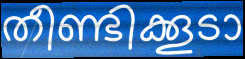
തീണ്ടിക്കൂടാ